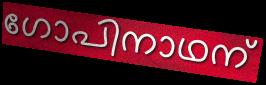
ഗോപിനാഥന്